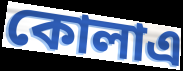
কোলাএ